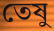
তেষু